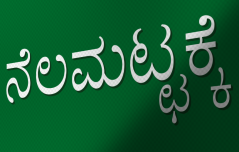
ನೆಲಮಟ್ಟಕ್ಕೆ